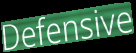
Defensive